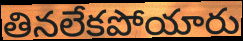
తినలేకపోయారు